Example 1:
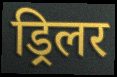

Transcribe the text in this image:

ड्रिलर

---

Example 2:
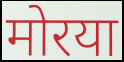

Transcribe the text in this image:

मोरया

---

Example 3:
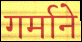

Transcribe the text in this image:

गर्माने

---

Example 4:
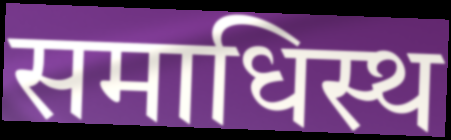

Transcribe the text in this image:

समाधिस्थ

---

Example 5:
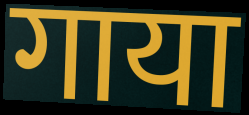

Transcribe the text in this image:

गाया